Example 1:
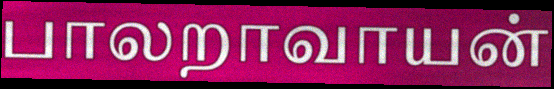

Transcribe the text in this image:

பாலறாவாயன்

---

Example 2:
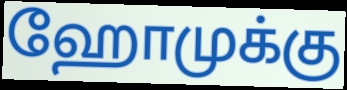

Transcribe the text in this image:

ஹோமுக்கு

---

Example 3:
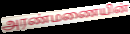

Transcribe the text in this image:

அரண்மணையின்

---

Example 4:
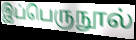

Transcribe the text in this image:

இப்பெருநூல்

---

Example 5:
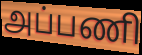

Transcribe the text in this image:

அப்பணி